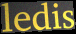
ledis